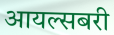
आयल्सबरी